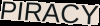
PIRACY